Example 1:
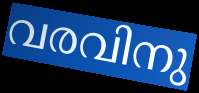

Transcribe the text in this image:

വരവിനു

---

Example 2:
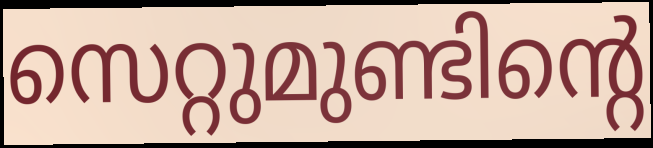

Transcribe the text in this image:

സെറ്റുമുണ്ടിന്റെ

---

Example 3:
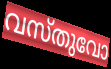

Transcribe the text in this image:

വസ്തുവോ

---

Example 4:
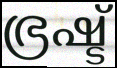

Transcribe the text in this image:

ഭ്രഷ്ട്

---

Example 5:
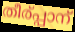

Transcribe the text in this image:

തീര്പ്പാന്